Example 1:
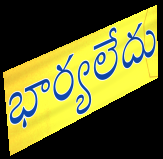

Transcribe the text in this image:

భార్యలేదు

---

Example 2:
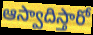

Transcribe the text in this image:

ఆస్వాదిస్తారో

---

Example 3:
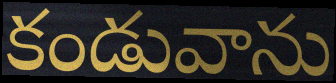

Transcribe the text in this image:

కండువాను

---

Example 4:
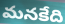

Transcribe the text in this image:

మనకేది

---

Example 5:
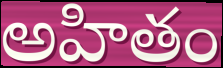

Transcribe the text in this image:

అహితం